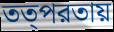
তত্পরতায়